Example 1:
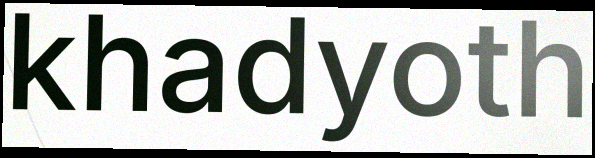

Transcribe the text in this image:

khadyoth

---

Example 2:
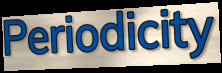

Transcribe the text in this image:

Periodicity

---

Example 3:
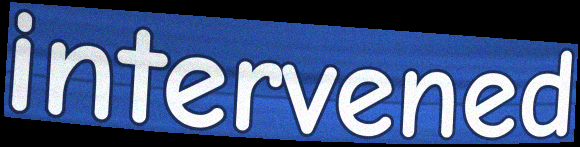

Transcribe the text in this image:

intervened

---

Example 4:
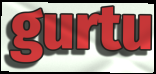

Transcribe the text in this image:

gurtu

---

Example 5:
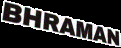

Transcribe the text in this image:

BHRAMAN